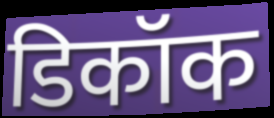
डिकॉक